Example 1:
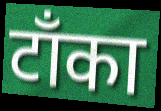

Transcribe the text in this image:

टाँका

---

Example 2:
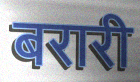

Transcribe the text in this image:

बरारी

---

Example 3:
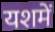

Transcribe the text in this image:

यशमें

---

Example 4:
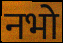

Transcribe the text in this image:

नभो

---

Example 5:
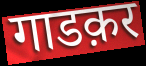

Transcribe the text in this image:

गाडक़र